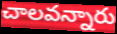
చాలవన్నారు